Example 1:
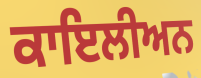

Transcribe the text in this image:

ਕਾਇਲੀਅਨ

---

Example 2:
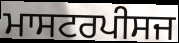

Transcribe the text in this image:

ਮਾਸਟਰਪੀਸਜ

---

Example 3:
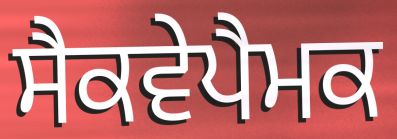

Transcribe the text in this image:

ਸੈਕਵੇਪੈਮਕ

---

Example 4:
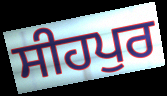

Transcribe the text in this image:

ਸੀਹਪੁਰ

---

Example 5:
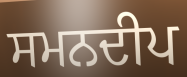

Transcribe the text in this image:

ਸਮਨਦੀਪ